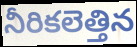
నీరికలెత్తిన